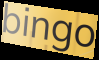
bingo